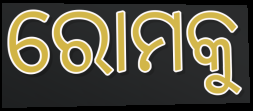
ରୋମକୁ